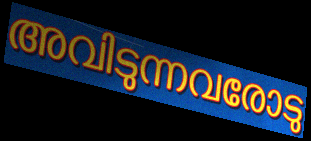
അവിടുന്നവരോടു